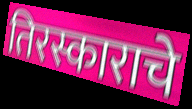
तिरस्काराचे